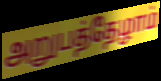
அறுபத்தேழாம்